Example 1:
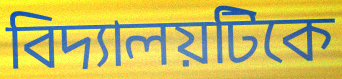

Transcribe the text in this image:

বিদ্যালয়টিকে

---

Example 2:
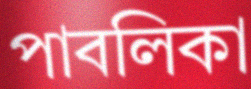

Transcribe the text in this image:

পাবলিকা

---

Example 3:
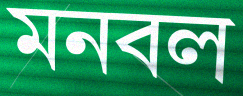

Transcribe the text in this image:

মনবল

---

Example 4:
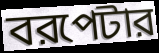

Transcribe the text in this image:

বরপেটার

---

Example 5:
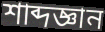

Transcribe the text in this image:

শাব্দজ্ঞান